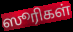
ஸூரிகள்